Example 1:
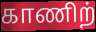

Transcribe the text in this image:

காணிற்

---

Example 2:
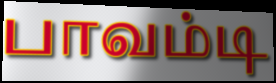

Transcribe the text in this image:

பாவம்டி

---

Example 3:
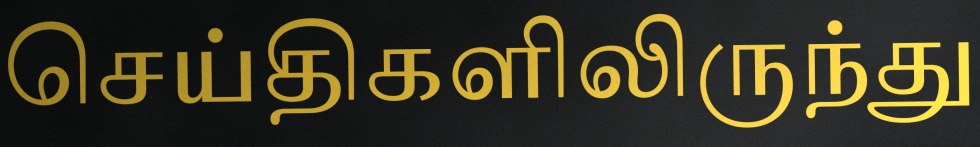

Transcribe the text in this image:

செய்திகளிலிருந்து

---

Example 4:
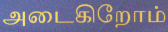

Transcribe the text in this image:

அடைகிறோம்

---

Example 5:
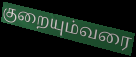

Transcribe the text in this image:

குறையும்வரை